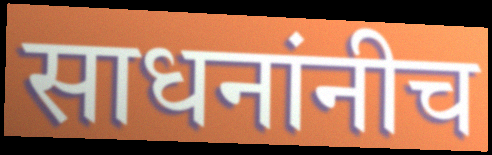
साधनांनीच